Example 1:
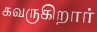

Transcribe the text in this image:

கவருகிறார்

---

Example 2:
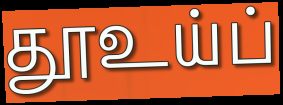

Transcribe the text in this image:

தூஉய்ப்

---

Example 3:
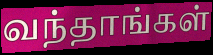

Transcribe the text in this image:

வந்தாங்கள்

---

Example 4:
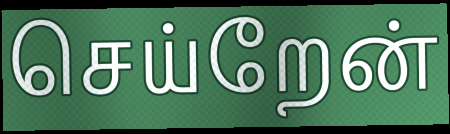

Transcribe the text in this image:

செய்றேன்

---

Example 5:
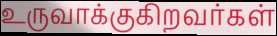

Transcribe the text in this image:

உருவாக்குகிறவர்கள்